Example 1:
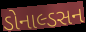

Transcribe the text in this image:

ડોનાલ્ડસન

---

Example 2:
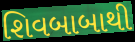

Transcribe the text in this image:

શિવબાબાથી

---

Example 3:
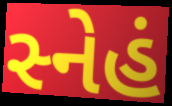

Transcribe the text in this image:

સ્નેહં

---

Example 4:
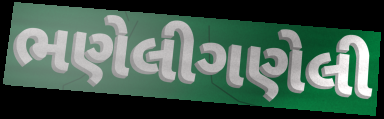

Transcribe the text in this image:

ભણેલીગણેલી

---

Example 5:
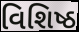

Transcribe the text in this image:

વિશિષ્ઠ